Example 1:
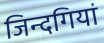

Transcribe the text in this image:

जिन्दगियां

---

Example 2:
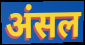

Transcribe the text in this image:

अंसल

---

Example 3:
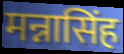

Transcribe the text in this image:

मन्नासिंह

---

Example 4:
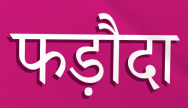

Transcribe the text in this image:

फड़ौदा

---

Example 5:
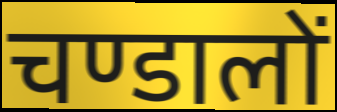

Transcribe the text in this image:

चण्डालों